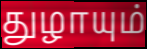
துழாயும்